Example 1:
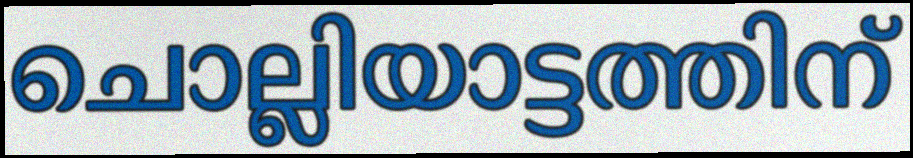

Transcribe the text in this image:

ചൊല്ലിയാട്ടത്തിന്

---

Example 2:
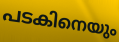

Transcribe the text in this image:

പടകിനെയും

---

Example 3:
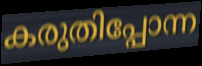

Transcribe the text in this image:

കരുതിപ്പോന്ന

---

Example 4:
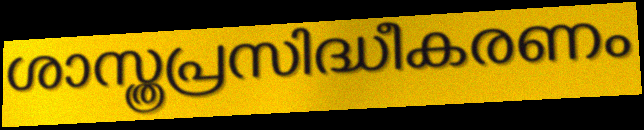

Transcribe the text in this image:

ശാസ്ത്രപ്രസിദ്ധീകരണം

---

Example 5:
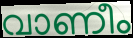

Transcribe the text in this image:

വാണീം